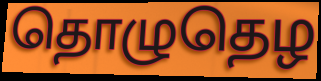
தொழுதெழ